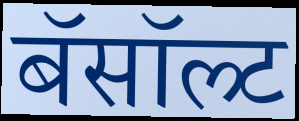
बॅसॉल्ट